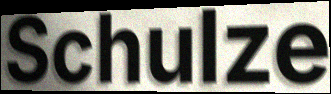
Schulze